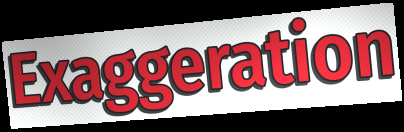
Exaggeration